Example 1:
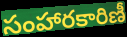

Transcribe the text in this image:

సంహారకారిణీ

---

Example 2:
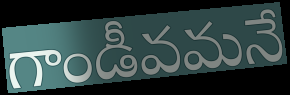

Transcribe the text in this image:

గాండీవమనే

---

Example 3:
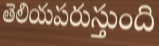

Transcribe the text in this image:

తెలియపరుస్తుంది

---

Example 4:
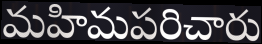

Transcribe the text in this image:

మహిమపరిచారు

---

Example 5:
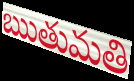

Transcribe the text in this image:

ఋతుమతి